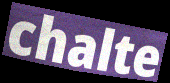
chalte